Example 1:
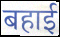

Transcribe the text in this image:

बहाई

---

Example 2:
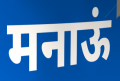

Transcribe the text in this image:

मनाऊं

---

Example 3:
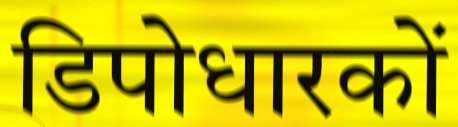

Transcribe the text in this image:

डिपोधारकों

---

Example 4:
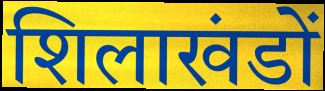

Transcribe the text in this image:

शिलाखंडों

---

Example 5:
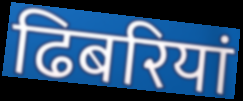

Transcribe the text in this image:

ढिबरियां